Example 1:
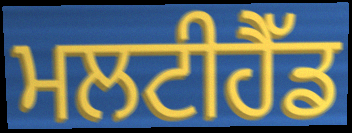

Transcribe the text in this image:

ਮਲਟੀਹੈੱਡ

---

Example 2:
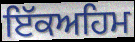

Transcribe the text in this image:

ਇੱਕਅਹਿਮ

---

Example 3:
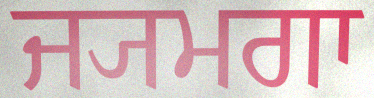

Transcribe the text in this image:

ਜ੍ਯਮਗਾ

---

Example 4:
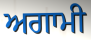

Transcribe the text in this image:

ਅਗਾਮੀ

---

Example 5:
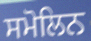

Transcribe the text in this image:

ਸਮੋਲਿਨ